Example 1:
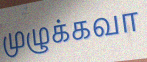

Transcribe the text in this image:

முழுக்கவா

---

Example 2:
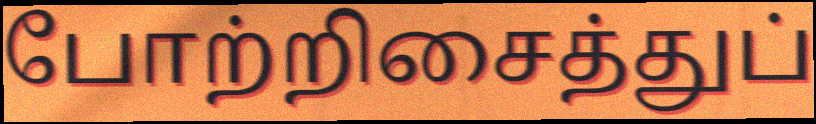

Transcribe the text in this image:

போற்றிசைத்துப்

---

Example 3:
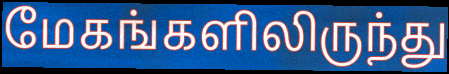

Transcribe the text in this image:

மேகங்களிலிருந்து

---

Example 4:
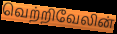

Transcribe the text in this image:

வெற்றிவேலின்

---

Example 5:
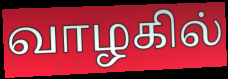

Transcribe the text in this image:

வாழகில்